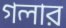
গলার